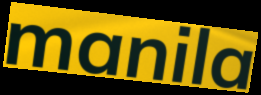
manila